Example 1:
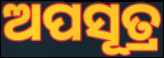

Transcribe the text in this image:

ଅପସୂତ୍ର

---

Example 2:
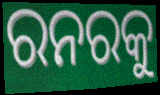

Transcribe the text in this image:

ରନରକୁ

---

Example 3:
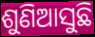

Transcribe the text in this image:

ଶୁଣିଆସୁଛି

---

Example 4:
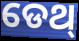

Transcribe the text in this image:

ଡେଥ୍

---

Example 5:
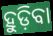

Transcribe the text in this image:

ହୁଡ଼ିବା